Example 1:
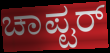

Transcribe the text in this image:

ಚಾಪ್ಟರ್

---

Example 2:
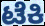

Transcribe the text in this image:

ಟೆಕಿ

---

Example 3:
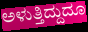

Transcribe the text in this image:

ಅಳುತ್ತಿದ್ದುದೂ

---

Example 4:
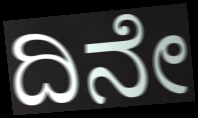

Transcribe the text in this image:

ದಿನೇ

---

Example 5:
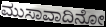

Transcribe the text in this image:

ಮುಸಾವಾದಿನೋ